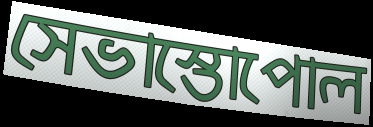
সেভাস্তোপোল